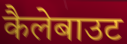
कैलेबाउट